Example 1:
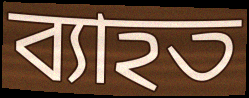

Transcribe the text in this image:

ব্যাহত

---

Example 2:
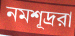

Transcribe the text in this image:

নমশূদ্ররা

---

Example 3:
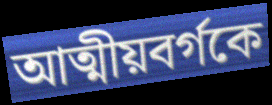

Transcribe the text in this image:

আত্মীয়বর্গকে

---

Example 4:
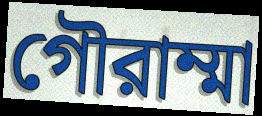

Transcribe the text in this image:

গৌরাম্মা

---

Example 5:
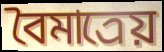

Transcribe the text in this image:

বৈমাত্রেয়